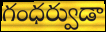
గంధర్వుడా